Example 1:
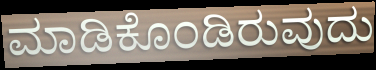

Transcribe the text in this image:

ಮಾಡಿಕೊಂಡಿರುವುದು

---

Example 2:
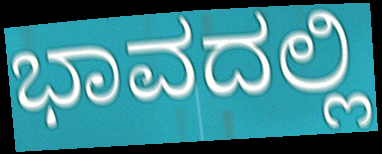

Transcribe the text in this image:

ಭಾವದಲ್ಲಿ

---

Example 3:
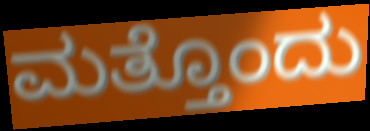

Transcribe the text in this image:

ಮತ್ತೊಂದು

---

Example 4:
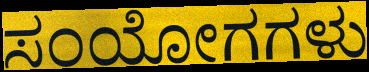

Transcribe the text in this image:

ಸಂಯೋಗಗಳು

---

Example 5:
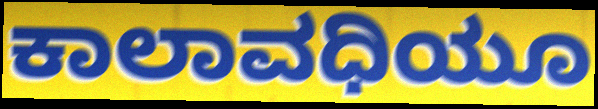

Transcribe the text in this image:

ಕಾಲಾವಧಿಯೂ